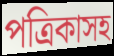
পত্রিকাসহ